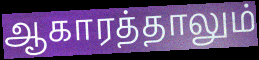
ஆகாரத்தாலும்